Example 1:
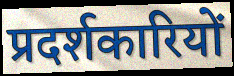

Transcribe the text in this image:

प्रदर्शकारियों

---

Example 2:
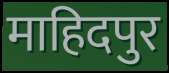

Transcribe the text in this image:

माहिदपुर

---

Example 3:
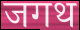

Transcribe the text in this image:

जगथ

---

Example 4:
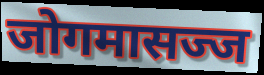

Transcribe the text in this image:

जोगमासज्ज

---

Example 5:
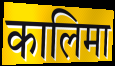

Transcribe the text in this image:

कालिमा